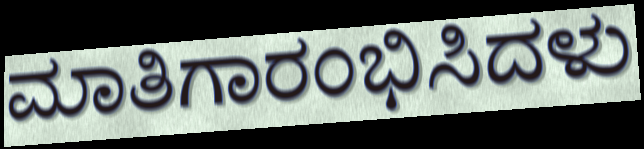
ಮಾತಿಗಾರಂಭಿಸಿದಳು